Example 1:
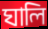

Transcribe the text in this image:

ঘালি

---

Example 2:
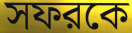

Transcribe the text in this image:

সফরকে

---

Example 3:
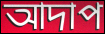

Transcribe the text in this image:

আদাপ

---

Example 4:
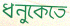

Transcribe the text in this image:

ধনুকেতে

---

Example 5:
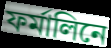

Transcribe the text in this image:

ফর্মালিনে